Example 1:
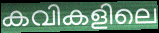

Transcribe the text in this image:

കവികളിലെ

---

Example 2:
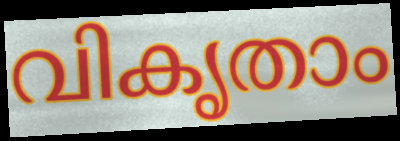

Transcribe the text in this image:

വികൃതാം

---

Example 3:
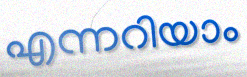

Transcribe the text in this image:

എന്നറിയാം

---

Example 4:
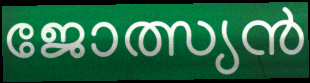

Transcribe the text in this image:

ജോത്സ്യൻ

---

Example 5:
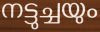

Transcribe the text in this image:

നട്ടുച്ചയും